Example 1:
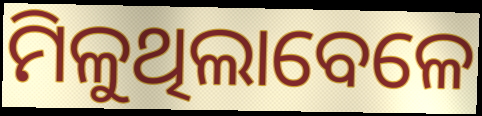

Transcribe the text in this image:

ମିଳୁଥିଲାବେଳେ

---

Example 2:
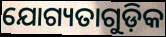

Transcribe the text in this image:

ଯୋଗ୍ୟତାଗୁଡ଼ିକ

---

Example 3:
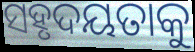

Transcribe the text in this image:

ସହୃଦୟତାକୁ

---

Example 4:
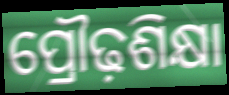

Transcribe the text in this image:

ପ୍ରୌଢ଼ଶିକ୍ଷା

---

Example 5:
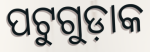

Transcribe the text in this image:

ପଟୁଗୁଡ଼ାକ